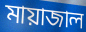
মায়াজাল